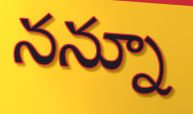
నన్నూ